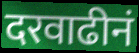
दरवाढीनं